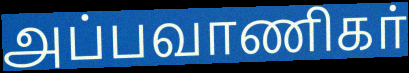
அப்பவாணிகர்